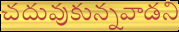
చదువుకున్నవాడని